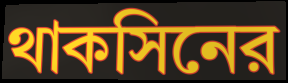
থাকসিনের